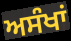
ਅਸੰਖਾਂ